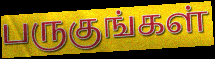
பருகுங்கள்